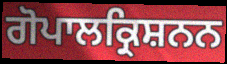
ਗੋਪਾਲਕ੍ਰਿਸ਼ਨਨ